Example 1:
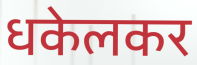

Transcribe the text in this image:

धकेलकर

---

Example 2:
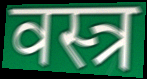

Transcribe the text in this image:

वस्‍त्र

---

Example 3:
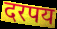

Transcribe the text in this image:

दरपय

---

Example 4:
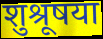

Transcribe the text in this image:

शुश्रूषया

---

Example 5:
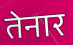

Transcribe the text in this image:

तेनार